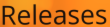
Releases